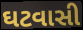
ઘટવાસી